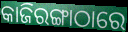
କାଜିରଙ୍ଗାଠାରେ